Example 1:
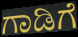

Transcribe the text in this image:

ಗಾಡಿಗೆ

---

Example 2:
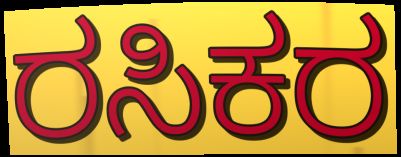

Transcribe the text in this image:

ರಸಿಕರ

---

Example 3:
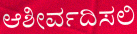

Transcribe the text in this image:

ಆಶೀರ್ವದಿಸಲಿ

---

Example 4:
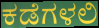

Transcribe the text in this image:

ಕಡೆಗಳಲಿ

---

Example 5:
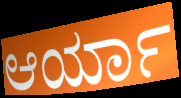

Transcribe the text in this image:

ಆರ್ಯಾ